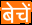
बेचें